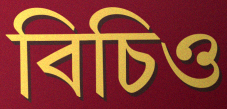
বিচিও